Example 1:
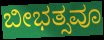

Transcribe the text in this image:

ಬೀಭತ್ಸವೂ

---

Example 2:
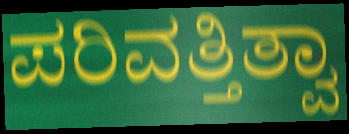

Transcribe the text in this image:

ಪರಿವತ್ತಿತ್ವಾ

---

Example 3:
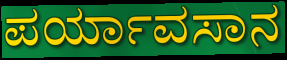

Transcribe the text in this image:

ಪರ್ಯಾವಸಾನ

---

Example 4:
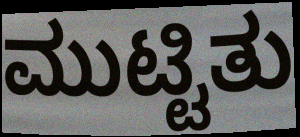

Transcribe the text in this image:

ಮುಟ್ಟಿತು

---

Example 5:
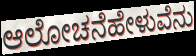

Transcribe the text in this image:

ಆಲೋಚನೆಹೇಳುವೆನು